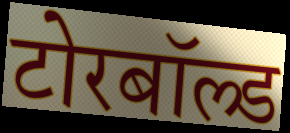
टोरबॉल्ड